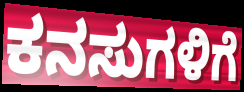
ಕನಸುಗಳಿಗೆ